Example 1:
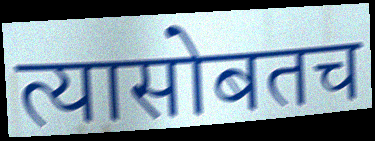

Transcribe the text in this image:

त्यासोबतच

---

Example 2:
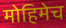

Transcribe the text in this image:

मोहिमेच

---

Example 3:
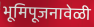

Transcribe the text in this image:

भूमिपूजनावेळी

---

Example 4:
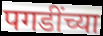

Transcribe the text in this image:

पगडींच्या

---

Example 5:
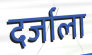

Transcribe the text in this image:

दर्जाला